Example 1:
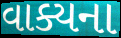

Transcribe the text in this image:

વાક્યના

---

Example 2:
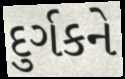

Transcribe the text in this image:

દુર્ગકને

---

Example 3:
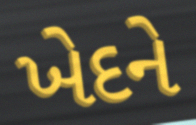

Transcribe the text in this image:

ખેદને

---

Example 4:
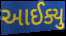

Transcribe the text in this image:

આઈક્યુ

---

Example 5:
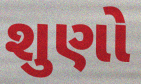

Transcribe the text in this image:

શુણો